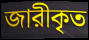
জারীকৃত